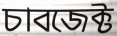
চাবজেক্ট